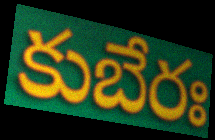
కుబేరః